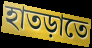
হাতড়াতে